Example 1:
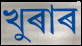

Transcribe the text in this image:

খুৰাৰ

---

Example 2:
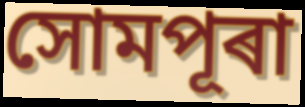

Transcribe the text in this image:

সোমপূৰা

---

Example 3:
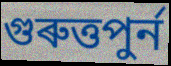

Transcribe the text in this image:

গুৰুত্তপুৰ্ন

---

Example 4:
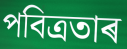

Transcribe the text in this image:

পবিত্ৰতাৰ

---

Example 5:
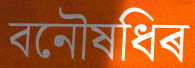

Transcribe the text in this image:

বনৌষধিৰ